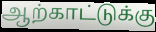
ஆற்காட்டுக்கு